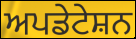
ਅਪਡੇਟੇਸ਼ਨ